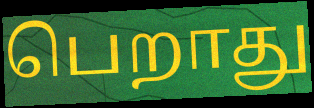
பெறாது